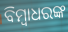
ବିମ୍ବାଧରଙ୍କ